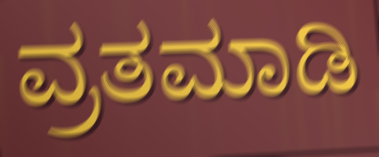
ವ್ರತಮಾಡಿ